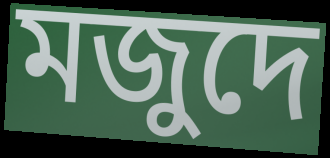
মজুদে